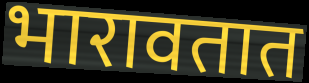
भारावतात